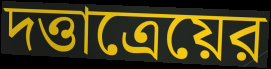
দত্তাত্রেয়ের